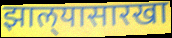
झाल्यासारखा